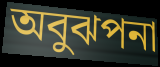
অবুঝপনা